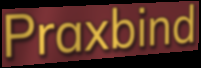
Praxbind